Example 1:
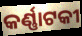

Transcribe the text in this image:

କର୍ଣ୍ଣାଟକୀ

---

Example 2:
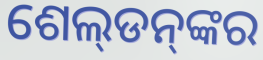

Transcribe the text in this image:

ଶେଲ୍‌ଡନ୍‌ଙ୍କର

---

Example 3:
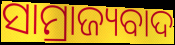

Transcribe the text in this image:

ସାମ୍ରାଜ୍ୟବାଦ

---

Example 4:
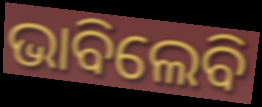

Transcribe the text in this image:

ଭାବିଲେବି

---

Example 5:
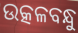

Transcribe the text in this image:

ଉତ୍କଳବନ୍ଧୁ